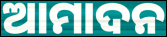
ଆମାଦନ